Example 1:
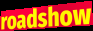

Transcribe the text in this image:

roadshow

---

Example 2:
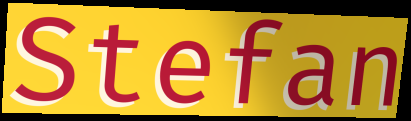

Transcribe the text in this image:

Stefan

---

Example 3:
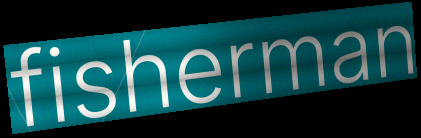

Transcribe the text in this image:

fisherman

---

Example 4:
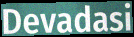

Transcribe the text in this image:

Devadasi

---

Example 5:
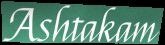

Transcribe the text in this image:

Ashtakam